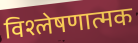
विश्लेषणात्मक